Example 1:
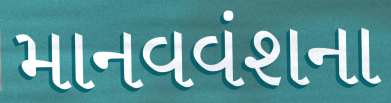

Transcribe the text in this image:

માનવવંશના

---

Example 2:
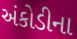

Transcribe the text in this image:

અંકોડીના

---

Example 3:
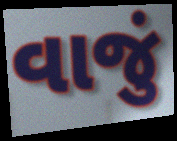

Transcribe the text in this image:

વાજું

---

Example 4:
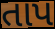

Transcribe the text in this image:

તાપ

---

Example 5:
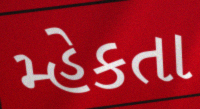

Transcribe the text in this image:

મ્હેકતા